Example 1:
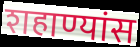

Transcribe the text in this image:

शहाण्यांस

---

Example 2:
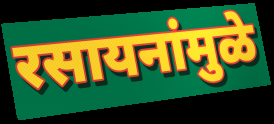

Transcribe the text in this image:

रसायनांमुळे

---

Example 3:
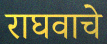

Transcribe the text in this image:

राघवाचे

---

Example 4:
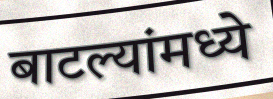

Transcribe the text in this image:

बाटल्यांमध्ये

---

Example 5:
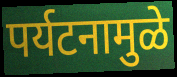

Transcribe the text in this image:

पर्यटनामुळे